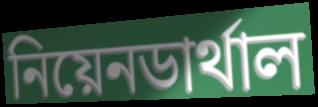
নিয়েনডার্থাল